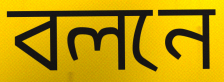
বলনে